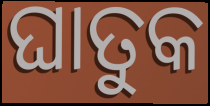
ଘାତୁକ